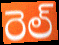
రెల్